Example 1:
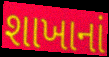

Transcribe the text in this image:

શાખાનાં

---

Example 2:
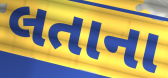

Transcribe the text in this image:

લતાના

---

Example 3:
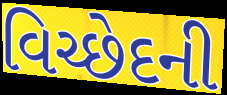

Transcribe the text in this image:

વિચ્છેદની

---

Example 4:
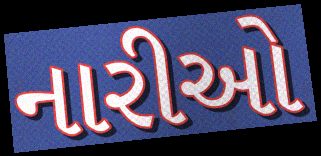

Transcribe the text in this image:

નારીઓ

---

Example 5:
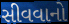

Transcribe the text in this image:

સીવવાનો